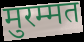
मुरम्मत